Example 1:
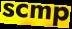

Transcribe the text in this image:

scmp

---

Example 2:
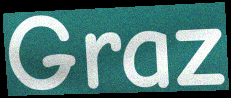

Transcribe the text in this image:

Graz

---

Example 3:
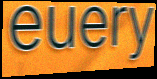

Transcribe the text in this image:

euery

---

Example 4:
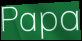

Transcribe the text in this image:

Papa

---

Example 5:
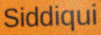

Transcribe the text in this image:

Siddiqui